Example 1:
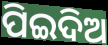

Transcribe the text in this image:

ପିଇଦିଅ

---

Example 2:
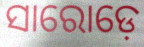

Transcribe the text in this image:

ସାରୋଡ଼େ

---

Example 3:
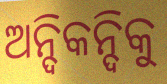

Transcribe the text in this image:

ଅନ୍ଦିକନ୍ଦିକୁ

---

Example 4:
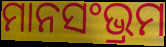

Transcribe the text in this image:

ମାନସଂଭ୍ରମ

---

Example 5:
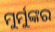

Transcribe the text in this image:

ମୁର୍ମୁଙ୍କର